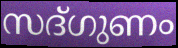
സദ്ഗുണം